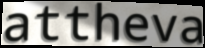
attheva